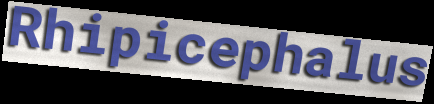
Rhipicephalus